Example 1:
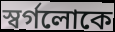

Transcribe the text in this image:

স্বর্গলোকে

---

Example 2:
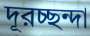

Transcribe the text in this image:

দূরচ্ছন্দা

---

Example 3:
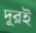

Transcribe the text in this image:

দূরই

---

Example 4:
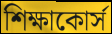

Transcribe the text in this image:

শিক্ষাকোর্স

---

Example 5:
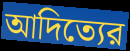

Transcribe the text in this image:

আদিত্যের